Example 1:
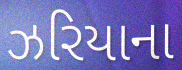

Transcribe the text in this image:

ઝરિયાના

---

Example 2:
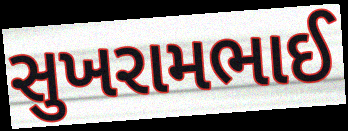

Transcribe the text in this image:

સુખરામભાઈ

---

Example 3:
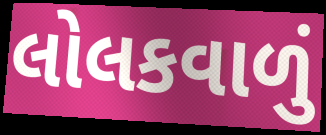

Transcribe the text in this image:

લોલકવાળું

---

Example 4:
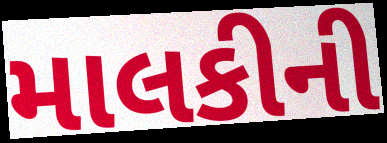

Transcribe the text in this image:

માલકીની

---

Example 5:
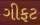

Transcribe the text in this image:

ગીફટ